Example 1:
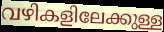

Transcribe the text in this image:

വഴികളിലേക്കുള്ള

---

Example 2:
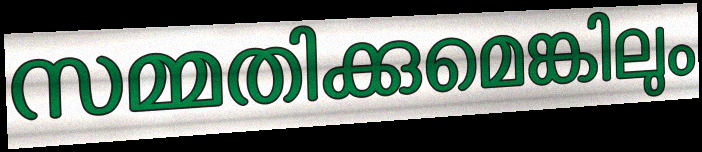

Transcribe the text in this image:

സമ്മതിക്കുമെങ്കിലും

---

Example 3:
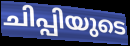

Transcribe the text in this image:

ചിപ്പിയുടെ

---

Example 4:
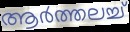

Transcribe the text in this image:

ആർത്തലച്ച്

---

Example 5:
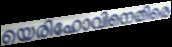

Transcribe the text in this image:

യെരിഹോവിനെതിരെ